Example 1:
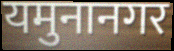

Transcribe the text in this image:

यमुनानगर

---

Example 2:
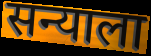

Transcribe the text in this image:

सन्याला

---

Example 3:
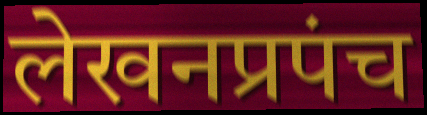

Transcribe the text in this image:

लेखनप्रपंच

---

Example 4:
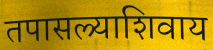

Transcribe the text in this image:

तपासल्याशिवाय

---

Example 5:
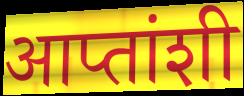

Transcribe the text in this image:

आप्तांशी